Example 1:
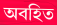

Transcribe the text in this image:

অবহিত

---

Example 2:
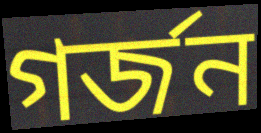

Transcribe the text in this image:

গর্জন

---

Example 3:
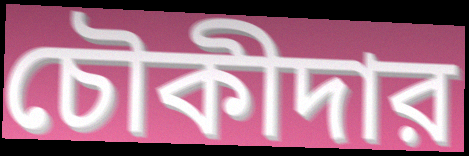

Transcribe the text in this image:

চৌকীদার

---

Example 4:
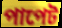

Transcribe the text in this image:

পাপেট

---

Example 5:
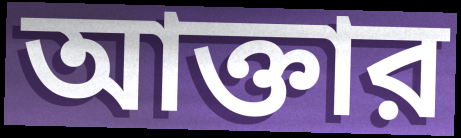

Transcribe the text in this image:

আক্তার